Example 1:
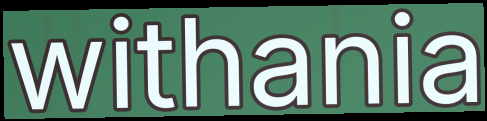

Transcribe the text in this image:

withania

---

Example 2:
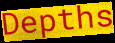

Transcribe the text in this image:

Depths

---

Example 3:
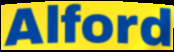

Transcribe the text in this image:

Alford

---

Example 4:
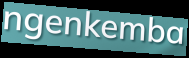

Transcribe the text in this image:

ngenkemba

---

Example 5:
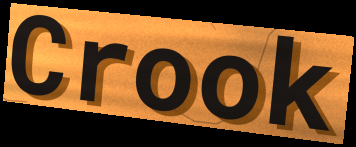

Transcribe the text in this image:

Crook